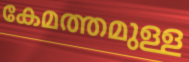
കേമത്തമുള്ള